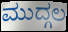
ಮುದ್ಗಲ